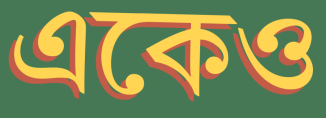
একেও